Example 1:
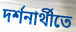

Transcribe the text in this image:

দর্শনার্থীতে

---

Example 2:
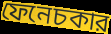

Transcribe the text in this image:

ফেনেচকার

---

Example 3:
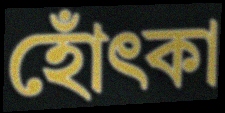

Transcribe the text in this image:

হোঁৎকা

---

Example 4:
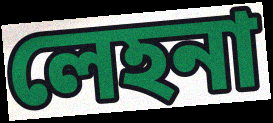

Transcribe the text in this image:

লেহনা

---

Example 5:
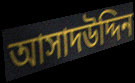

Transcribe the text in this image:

আসাদউদ্দিন